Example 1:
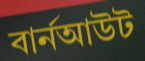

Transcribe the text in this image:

বার্নআউট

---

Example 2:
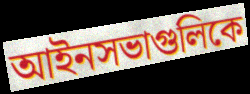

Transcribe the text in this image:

আইনসভাগুলিকে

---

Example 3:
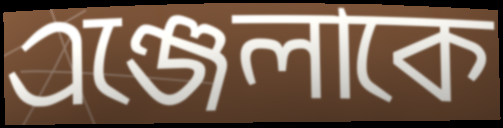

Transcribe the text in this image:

এঞ্জেলাকে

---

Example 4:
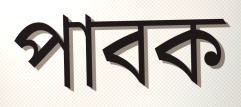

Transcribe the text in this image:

পাবক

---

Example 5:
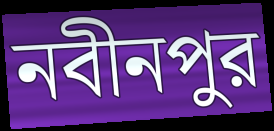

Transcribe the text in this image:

নবীনপুর